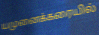
யமுனைக்கரையில்